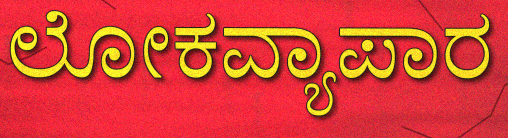
ಲೋಕವ್ಯಾಪಾರ